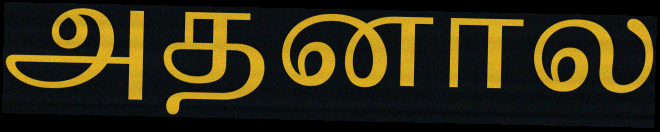
அதனால